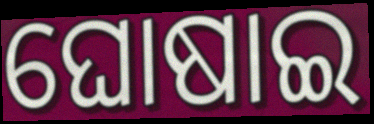
ଘୋଷାଇ